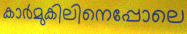
കാർമുകിലിനെപ്പോലെ